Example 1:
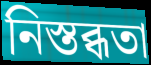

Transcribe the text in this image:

নিস্তব্ধতা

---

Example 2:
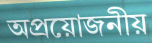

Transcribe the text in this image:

অপ্ৰয়োজনীয়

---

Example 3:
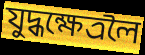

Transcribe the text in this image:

যুদ্ধক্ষেত্ৰলৈ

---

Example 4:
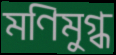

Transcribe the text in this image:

মণিমুগ্ধ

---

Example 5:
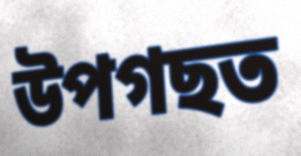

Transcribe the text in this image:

উপগছত